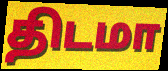
திடமா